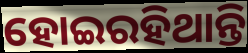
ହୋଇରହିଥାନ୍ତି